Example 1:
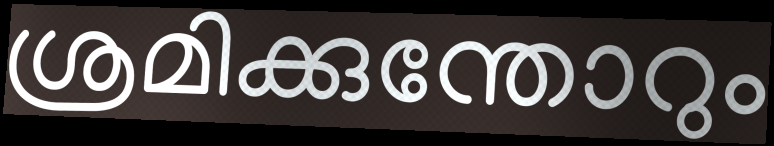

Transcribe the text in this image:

ശ്രമിക്കുന്തോറും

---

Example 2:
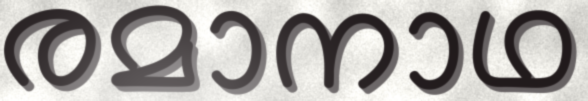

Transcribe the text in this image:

രമാനാഥ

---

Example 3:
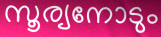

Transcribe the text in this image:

സൂര്യനോടും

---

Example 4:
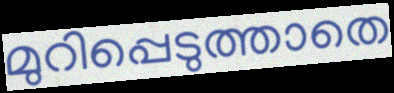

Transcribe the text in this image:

മുറിപ്പെടുത്താതെ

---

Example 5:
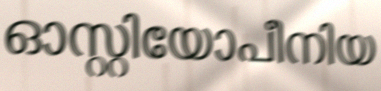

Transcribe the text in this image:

ഓസ്റ്റിയോപീനിയ